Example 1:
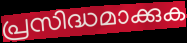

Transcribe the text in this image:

പ്രസിദ്ധമാക്കുക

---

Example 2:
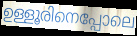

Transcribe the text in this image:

ഉള്ളൂരിനെപ്പോലെ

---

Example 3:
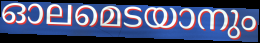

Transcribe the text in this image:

ഓലമെടയാനും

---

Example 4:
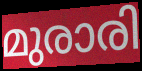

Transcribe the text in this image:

മുരാരി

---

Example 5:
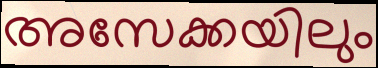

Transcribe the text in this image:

അസേക്കയിലും